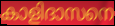
കാളിദാസനെ